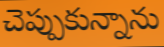
చెప్పుకున్నాను